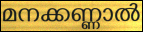
മനക്കണ്ണാൽ